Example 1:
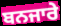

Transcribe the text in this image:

ਬਨਜਾਰੇ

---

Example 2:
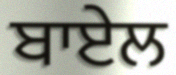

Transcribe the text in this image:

ਬਾਏਲ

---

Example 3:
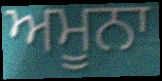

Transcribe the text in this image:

ਅਮੂਨਾ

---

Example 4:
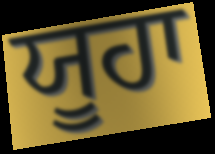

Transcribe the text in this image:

ਯੂਹਾ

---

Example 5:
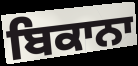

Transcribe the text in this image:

ਬਿਕਾਨਾ